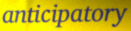
anticipatory